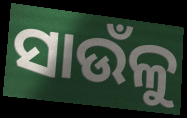
ସାଉଁଳୁ